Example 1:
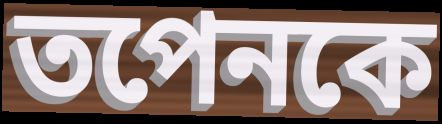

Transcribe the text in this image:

তপেনকে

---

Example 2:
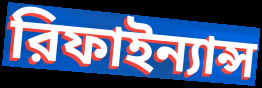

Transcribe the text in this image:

রিফাইন্যান্স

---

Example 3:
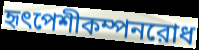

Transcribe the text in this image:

হৃৎপেশীকম্পনরোধ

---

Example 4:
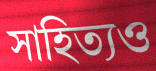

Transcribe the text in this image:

সাহিত্যও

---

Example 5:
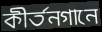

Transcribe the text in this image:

কীর্তনগানে